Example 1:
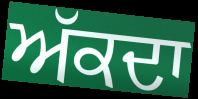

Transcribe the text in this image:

ਅੱਕਦਾ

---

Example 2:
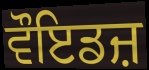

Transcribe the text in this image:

ਵੌਇਡਜ਼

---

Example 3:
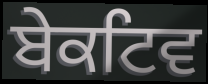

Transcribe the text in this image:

ਬੇਕਟਿਵ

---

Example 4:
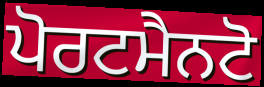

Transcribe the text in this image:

ਪੋਰਟਮੈਨਟੋ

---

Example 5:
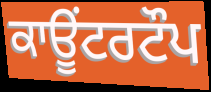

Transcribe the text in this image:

ਕਾਊਂਟਰਟੌਪ